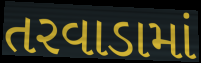
તરવાડામાં